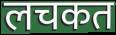
लचकत